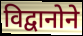
विद्वानोने